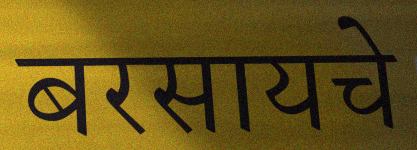
बरसायचे